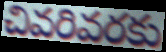
చివరివరకు